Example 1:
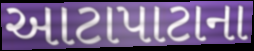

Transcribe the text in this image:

આટાપાટાના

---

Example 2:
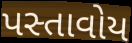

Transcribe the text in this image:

પસ્તાવોય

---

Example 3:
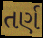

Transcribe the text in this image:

તર્ણ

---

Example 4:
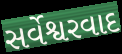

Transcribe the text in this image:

સર્વેશ્વરવાદ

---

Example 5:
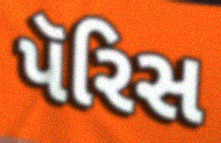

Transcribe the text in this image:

પૅરિસ